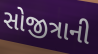
સોજીત્રાની